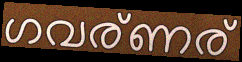
ഗവര്ണര്